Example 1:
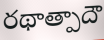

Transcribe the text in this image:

రథాత్పాదౌ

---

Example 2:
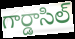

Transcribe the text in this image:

గార్డాసిల్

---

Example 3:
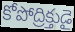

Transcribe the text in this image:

కోపోద్రిక్తుడై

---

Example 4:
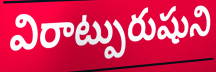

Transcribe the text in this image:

విరాట్పురుషుని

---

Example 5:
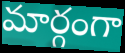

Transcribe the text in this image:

మార్గంగా